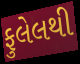
ફુલેલથી